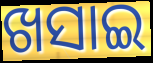
ଖସାଇ